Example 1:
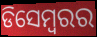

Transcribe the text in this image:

ଡିସେମ୍ୱରର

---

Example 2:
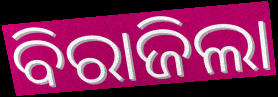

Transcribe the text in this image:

ବିରାଜିଲା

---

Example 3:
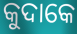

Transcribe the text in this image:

କୁଦାକେ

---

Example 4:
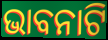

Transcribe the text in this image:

ଭାବନାଟି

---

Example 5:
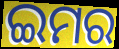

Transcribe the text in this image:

ଇମର